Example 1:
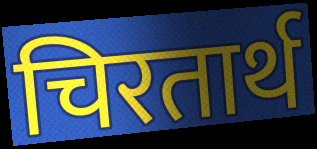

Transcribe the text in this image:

चिरतार्थ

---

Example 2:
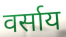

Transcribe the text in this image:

वर्साय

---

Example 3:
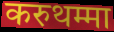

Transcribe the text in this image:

करुथम्मा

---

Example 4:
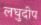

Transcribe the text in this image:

लघुदीप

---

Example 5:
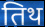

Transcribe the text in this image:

तिथ